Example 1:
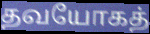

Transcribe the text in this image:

தவயோகத்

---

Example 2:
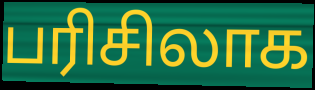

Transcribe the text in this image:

பரிசிலாக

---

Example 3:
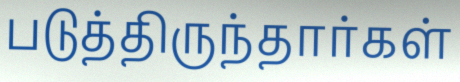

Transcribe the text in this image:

படுத்திருந்தார்கள்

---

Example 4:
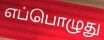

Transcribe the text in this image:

எப்பொழுது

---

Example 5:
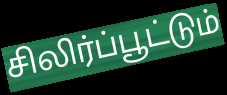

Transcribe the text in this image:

சிலிர்ப்பூட்டும்